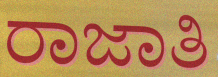
ರಾಜಾತಿ